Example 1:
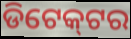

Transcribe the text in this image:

ଡିଟେକ୍‌ଟର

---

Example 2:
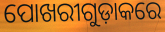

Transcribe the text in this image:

ପୋଖରୀଗୁଡ଼ାକରେ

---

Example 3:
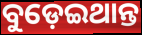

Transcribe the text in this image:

ବୁଡ଼େଇଥାନ୍ତ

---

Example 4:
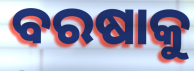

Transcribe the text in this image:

ବରଷାକୁ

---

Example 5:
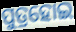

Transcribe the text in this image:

ପୁତ୍ରହୋଇ